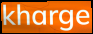
kharge